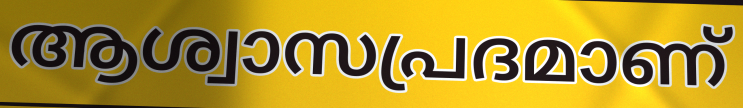
ആശ്വാസപ്രദമാണ്